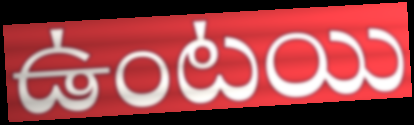
ఉంటయి